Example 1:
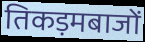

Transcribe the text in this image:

तिकड़मबाजों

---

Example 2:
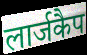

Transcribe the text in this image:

लार्जकैप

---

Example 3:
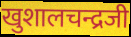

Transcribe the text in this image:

खुशालचन्द्रजी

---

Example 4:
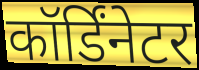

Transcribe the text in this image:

कॉर्डिंनेटर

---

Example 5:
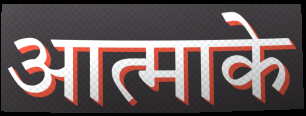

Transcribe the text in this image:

आत्माके